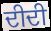
ਦੀਦੀ